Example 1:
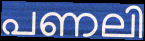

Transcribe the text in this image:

പണലി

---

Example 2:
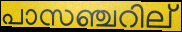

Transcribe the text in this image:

പാസഞ്ചറില്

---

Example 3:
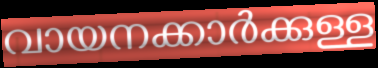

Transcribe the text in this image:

വായനക്കാർക്കുള്ള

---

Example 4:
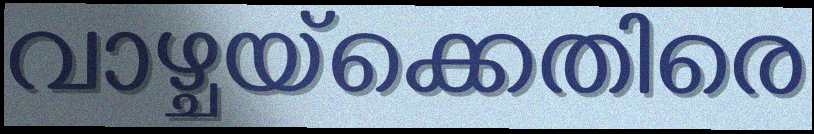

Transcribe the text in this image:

വാഴ്ചയ്‌ക്കെതിരെ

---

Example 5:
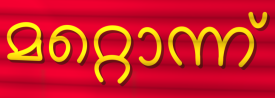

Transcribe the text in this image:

മറ്റൊന്ന്